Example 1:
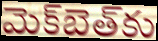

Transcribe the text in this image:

మెక్‌బెత్‌కు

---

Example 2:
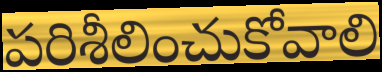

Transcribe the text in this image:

పరిశీలించుకోవాలి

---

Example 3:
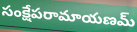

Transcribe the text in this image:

సంక్షేపరామాయణమ్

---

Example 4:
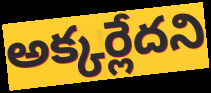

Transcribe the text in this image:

అక్కర్లేదని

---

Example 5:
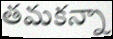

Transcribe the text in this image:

తమకన్నా